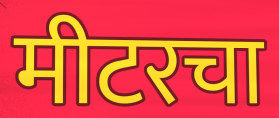
मीटरचा